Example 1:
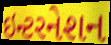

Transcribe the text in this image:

ઇન્ટરનેશન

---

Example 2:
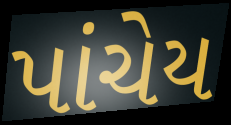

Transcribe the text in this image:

પાંચેય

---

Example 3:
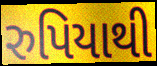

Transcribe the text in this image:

રુપિયાથી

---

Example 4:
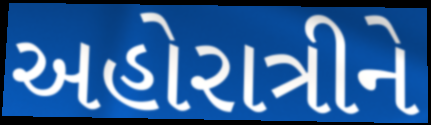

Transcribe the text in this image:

અહોરાત્રીને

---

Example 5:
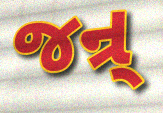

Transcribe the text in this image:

જન્ર્